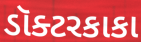
ડૉક્ટરકાકા